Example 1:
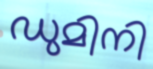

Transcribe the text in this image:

ഡുമിനി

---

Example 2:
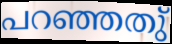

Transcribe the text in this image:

പറഞ്ഞതു്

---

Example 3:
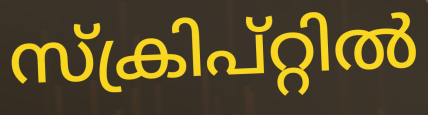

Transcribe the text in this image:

സ്ക്രിപ്റ്റിൽ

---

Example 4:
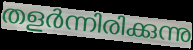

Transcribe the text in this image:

തളർന്നിരിക്കുന്നു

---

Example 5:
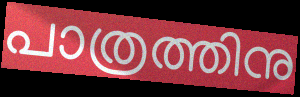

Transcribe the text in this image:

പാത്രത്തിനു